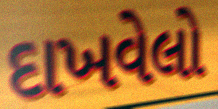
દાખવેલો